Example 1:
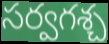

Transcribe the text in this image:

సర్వగశ్చ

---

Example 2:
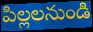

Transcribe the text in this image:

పిల్లలనుండి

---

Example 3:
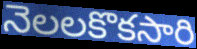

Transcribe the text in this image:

నెలలకొకసారి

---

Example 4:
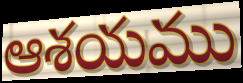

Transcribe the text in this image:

ఆశయము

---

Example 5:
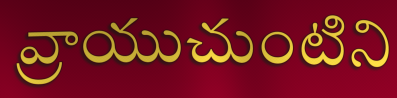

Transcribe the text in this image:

వ్రాయుచుంటిని